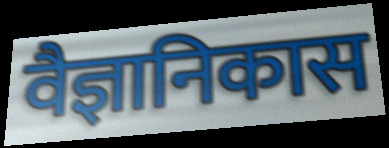
वैज्ञानिकास